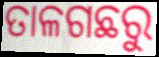
ତାଳଗଛରୁ